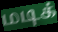
மடிக்